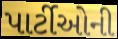
પાર્ટીઓની